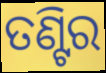
ତଣ୍ଟିର